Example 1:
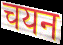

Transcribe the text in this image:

चयन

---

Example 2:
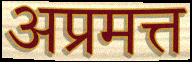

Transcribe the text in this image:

अप्रमत्त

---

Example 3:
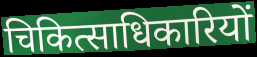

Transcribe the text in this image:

चिकित्साधिकारियों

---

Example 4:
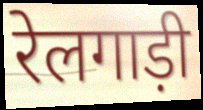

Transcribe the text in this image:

रेलगाड़ी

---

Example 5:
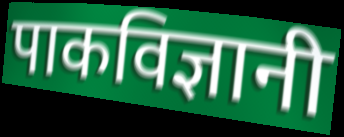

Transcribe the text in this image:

पाकविज्ञानी